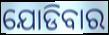
ଯୋଡିବାର